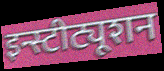
इन्स्टीट्यूशन